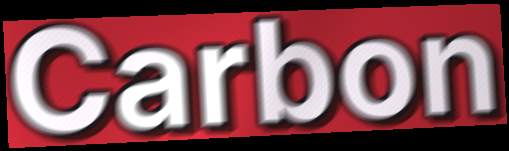
Carbon